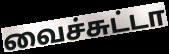
வைச்சுட்டா